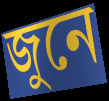
জুনে